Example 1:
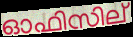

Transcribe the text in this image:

ഓഫിസില്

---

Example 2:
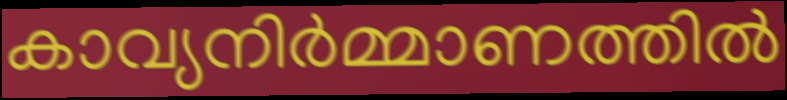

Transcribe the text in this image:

കാവ്യനിർമ്മാണത്തിൽ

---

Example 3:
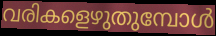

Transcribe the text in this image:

വരികളെഴുതുമ്പോൾ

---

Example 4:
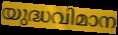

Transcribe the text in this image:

യുദ്ധവിമാന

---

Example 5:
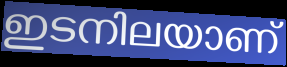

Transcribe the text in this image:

ഇടനിലയാണ്